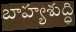
బాహ్యశుద్ధి